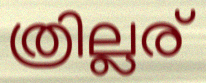
ത്രില്ലര്